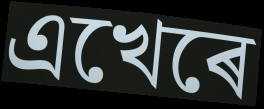
এখেৰে